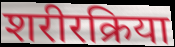
शरीरक्रिया